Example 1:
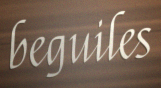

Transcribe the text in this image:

beguiles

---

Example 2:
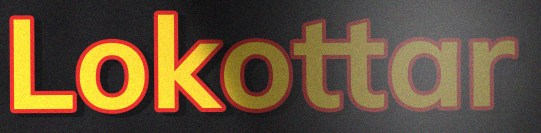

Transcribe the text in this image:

Lokottar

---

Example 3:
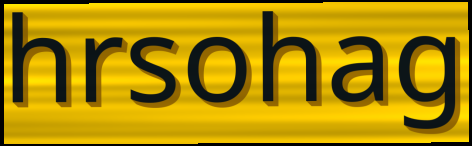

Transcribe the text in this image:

hrsohag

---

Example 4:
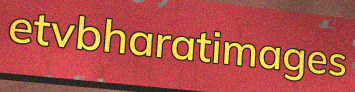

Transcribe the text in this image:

etvbharatimages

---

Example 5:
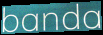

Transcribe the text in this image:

banda